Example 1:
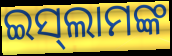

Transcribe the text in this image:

ଇସ୍‌ଲାମଙ୍କ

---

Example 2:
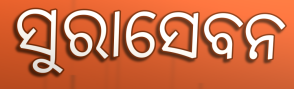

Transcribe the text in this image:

ସୁରାସେବନ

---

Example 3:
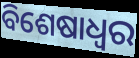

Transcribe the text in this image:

ବିଶେଷାଧ୍ଵର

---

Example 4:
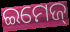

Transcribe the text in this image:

ଇମେଜ୍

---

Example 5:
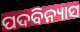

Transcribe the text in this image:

ପଦବିନ୍ୟାସ